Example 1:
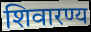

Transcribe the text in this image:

शिवारण्य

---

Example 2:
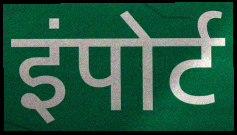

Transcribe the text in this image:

इंपोर्ट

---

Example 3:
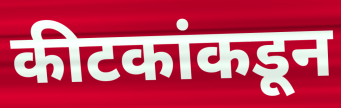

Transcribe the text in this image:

कीटकांकडून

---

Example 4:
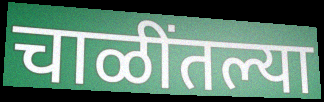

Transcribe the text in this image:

चाळींतल्या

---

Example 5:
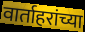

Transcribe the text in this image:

वार्ताहरांच्या